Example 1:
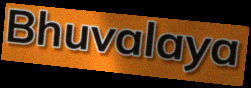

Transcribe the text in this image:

Bhuvalaya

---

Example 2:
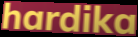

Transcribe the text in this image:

hardika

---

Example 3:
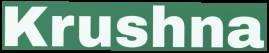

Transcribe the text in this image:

Krushna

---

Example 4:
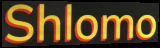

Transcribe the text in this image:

Shlomo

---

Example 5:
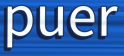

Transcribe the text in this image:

puer